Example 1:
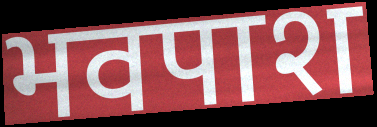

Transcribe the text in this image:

भवपाश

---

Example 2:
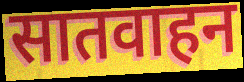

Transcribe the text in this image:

सातवाहन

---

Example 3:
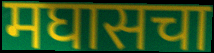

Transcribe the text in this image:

मघासचा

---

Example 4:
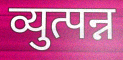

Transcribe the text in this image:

व्युत्पन्न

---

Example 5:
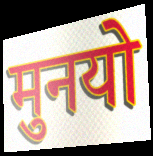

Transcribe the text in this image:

मुनयो